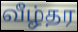
வீழ்தர